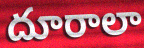
దూరాలా